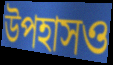
উপহাসও